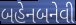
બહેનબનેવી